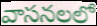
వాసనలలో